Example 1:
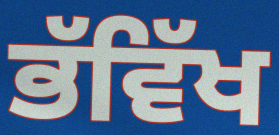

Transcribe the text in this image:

ਭੱਵਿੱਖ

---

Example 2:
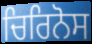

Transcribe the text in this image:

ਚਿਰਿਨੋਸ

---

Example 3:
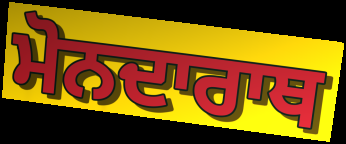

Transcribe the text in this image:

ਮੋਨਦਾਰਾਥ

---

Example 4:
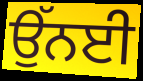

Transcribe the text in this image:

ਉੱਨਈ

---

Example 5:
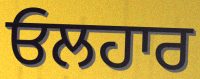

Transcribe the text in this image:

ਓਲਹਾਰ